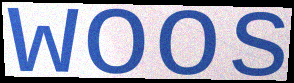
woos